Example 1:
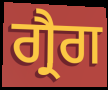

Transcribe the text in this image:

ਗ੍ਰੈਗ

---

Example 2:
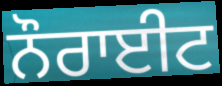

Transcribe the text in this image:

ਨੌਰਾਈਟ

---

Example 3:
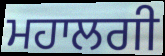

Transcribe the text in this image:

ਮਹਾਲਗੀ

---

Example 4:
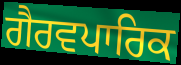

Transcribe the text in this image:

ਗੈਰਵਪਾਰਿਕ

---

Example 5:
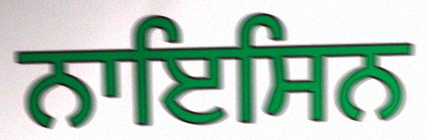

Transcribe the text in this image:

ਨਾਇਸਿਨ